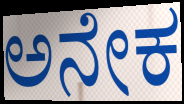
ಅನೇಕ